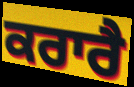
ਕਰਾਰੈ